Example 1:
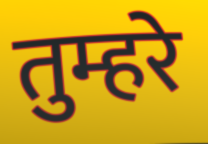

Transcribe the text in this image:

तुम्हरे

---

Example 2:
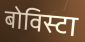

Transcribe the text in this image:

बोविस्टा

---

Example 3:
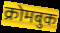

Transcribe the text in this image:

क्रोमबुक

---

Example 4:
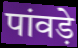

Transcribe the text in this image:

पांवड़े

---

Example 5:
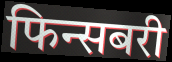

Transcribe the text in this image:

फिन्सबरी